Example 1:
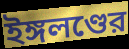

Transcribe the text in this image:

ইঙ্গলণ্ডের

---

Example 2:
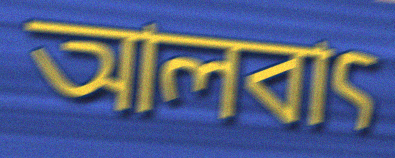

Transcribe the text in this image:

আলবাৎ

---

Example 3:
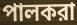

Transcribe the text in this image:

পালকরা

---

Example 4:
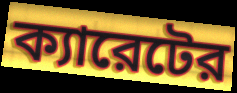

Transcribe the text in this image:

ক্যারেটের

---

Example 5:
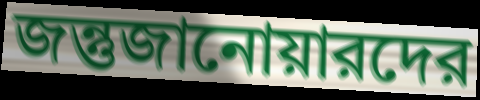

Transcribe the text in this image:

জন্তুজানোয়ারদের